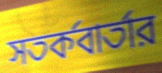
সতর্কবার্তার